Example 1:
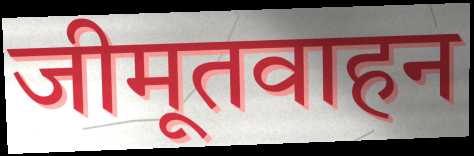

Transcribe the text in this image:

जीमूतवाहन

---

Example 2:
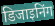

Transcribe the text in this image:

डिजाइनिंग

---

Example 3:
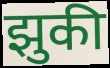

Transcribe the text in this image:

झुकी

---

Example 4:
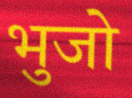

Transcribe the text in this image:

भुजो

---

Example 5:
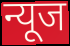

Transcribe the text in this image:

न्यूज